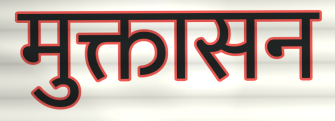
मुक्तासन